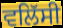
ਵਲਿੱਸੀ